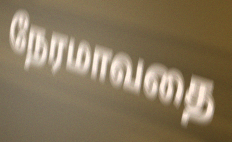
நேரமாவதை